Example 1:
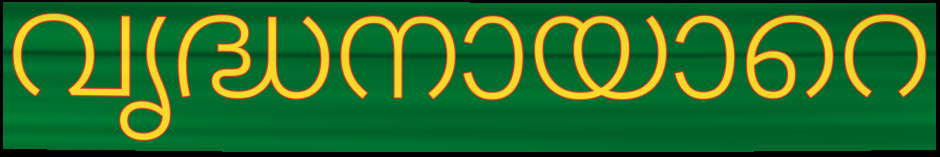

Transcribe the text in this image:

വൃദ്ധനായാറെ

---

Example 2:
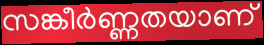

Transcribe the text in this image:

സങ്കീർണ്ണതയാണ്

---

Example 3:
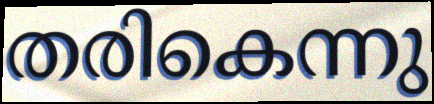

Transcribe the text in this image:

തരികെന്നു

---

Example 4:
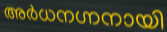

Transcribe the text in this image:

അർധനഗ്നനായി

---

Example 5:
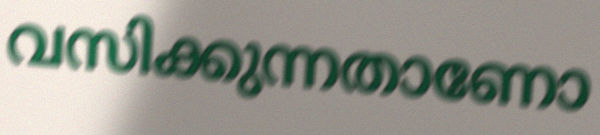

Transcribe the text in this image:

വസിക്കുന്നതാണോ